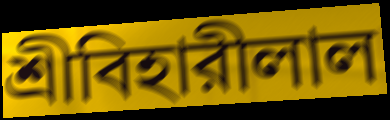
শ্রীবিহারীলাল